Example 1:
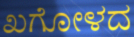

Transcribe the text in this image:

ಖಗೋಳದ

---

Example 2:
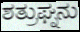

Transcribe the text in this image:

ಶತ್ರುಘ್ನನು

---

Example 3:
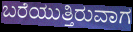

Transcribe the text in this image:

ಬರೆಯುತ್ತಿರುವಾಗ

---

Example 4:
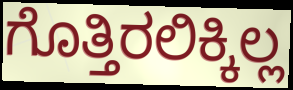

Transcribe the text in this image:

ಗೊತ್ತಿರಲಿಕ್ಕಿಲ್ಲ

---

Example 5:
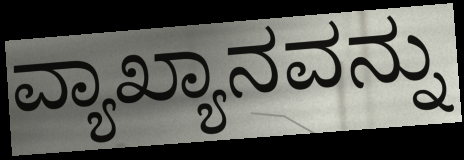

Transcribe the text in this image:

ವ್ಯಾಖ್ಯಾನವನ್ನು